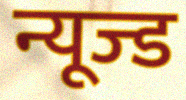
न्यूज्ड